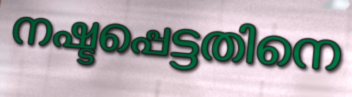
നഷ്ടപ്പെട്ടതിനെ